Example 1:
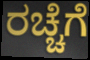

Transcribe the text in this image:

ರಚ್ಚೆಗೆ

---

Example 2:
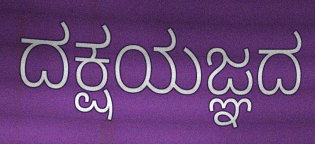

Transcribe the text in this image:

ದಕ್ಷಯಜ್ಞದ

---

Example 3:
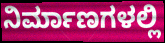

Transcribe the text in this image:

ನಿರ್ಮಾಣಗಳಲ್ಲಿ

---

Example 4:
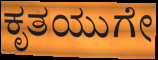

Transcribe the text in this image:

ಕೃತಯುಗೇ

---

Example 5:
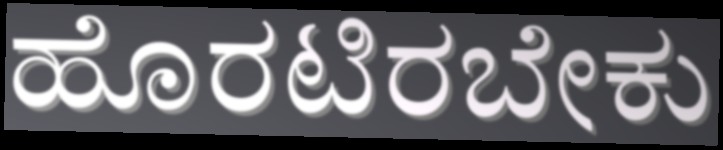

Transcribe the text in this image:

ಹೊರಟಿರಬೇಕು